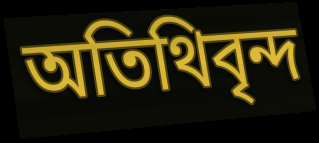
অতিথিবৃন্দ